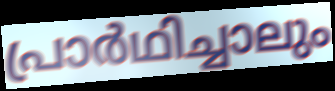
പ്രാർഥിച്ചാലും